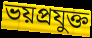
ভয়প্রযুক্ত